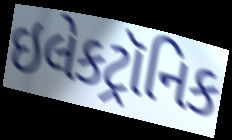
ઇલેકટ્રૉનિક